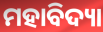
ମହାବିଦ୍ୟା